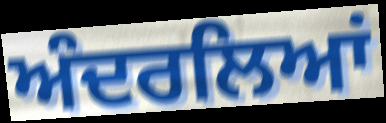
ਅੰਦਰਲਿਆਂ